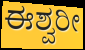
ಈಶ್ವರೀ